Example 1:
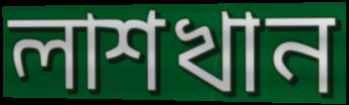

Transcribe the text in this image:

লাশখান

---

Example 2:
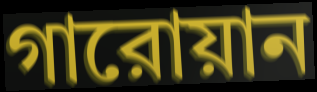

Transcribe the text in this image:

গারোয়ান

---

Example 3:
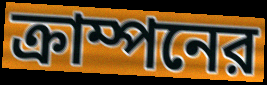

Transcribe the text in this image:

ক্রাম্পনের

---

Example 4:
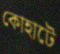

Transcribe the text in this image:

কোহাটে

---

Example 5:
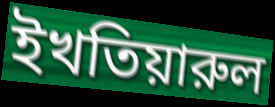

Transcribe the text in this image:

ইখতিয়ারুল